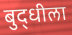
बुद्धीला